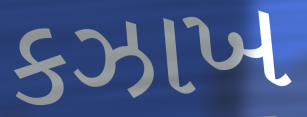
કઝાખ